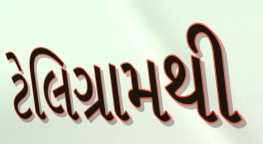
ટેલિગ્રામથી